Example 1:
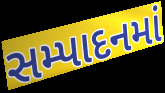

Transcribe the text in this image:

સમ્પાદનમાં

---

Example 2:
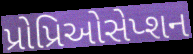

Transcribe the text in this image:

પ્રોપ્રિઓસેપ્શન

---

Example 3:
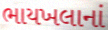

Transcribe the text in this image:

ભાયખલાનાં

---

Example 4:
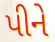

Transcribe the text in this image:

પીને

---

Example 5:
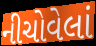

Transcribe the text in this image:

નીચોવેલાં